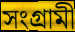
সংগ্রামী